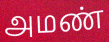
அமண்